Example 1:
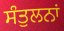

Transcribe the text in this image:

ਸੰਤੁਲਨਾਂ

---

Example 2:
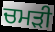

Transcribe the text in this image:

ਚਮਡ਼ੀ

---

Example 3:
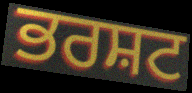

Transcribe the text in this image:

ਭਰਸ਼ਟ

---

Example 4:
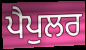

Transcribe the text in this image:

ਪੈਪੁਲਰ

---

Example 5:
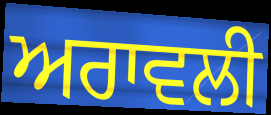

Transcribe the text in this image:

ਅਰਾਵਲੀ